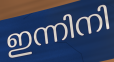
ഇന്നിനി